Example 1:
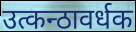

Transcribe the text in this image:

उत्कन्ठावर्धक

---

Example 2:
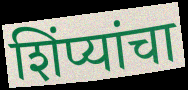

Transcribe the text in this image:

शिंप्यांचा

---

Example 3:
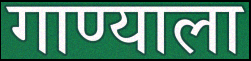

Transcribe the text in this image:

गाण्याला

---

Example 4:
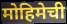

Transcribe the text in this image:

मोहिमेची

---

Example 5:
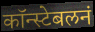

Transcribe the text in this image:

कॉन्स्टेबलनं